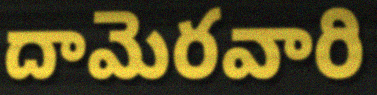
దామెరవారి